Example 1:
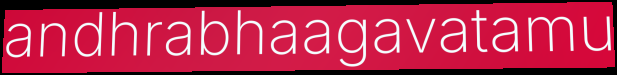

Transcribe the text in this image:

andhrabhaagavatamu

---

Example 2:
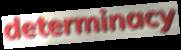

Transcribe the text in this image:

determinacy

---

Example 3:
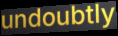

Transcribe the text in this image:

undoubtly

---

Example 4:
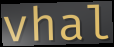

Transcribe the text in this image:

vhal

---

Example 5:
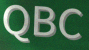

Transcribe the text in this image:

QBC